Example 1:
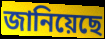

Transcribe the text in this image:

জানিয়েছে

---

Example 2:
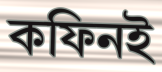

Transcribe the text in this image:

কফিনই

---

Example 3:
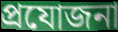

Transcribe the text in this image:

প্রযোজনা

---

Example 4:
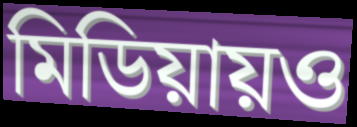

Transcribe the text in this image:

মিডিয়ায়ও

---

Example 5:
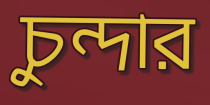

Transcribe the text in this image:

চুন্দার